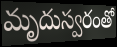
మృదుస్వరంతో